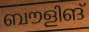
ബൗളിങ്